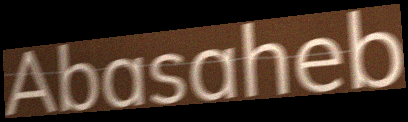
Abasaheb